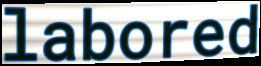
labored